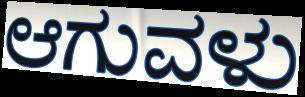
ಆಗುವಳು